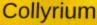
Collyrium